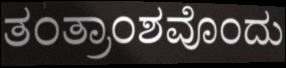
ತಂತ್ರಾಂಶವೊಂದು